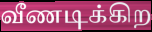
வீணடிக்கிற